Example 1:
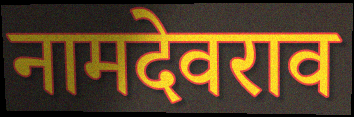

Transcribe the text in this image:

नामदेवराव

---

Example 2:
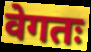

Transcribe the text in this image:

वेगतः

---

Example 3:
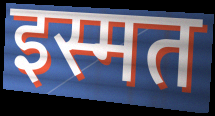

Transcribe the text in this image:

इस्मत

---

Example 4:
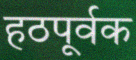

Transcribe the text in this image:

हठपूर्वक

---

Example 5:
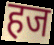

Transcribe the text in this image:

हज